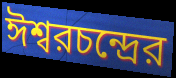
ঈশ্বরচন্দ্রের